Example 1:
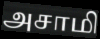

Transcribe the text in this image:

அசாமி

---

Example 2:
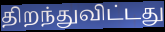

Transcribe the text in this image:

திறந்துவிட்டது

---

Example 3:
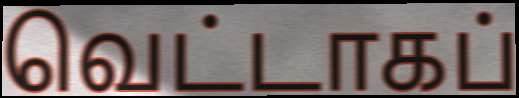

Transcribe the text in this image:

வெட்டாகப்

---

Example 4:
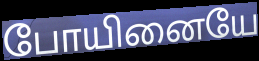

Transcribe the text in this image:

போயினையே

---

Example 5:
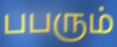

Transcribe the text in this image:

பபரும்